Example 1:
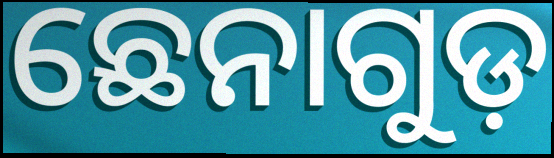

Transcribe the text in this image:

ଛେନାଗୁଡ଼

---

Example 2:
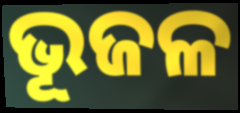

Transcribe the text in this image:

ଭୂଜଳ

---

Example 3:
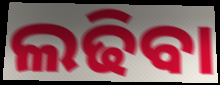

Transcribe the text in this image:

ଲଢିବା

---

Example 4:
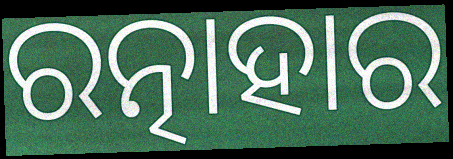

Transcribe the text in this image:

ରତ୍ନାହାର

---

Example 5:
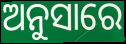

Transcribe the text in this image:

ଅନୁସାରେ